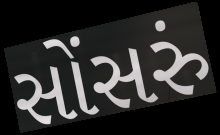
સોંસરું